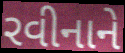
રવીનાને